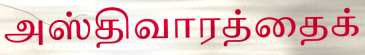
அஸ்திவாரத்தைக்